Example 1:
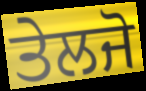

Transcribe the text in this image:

ਤੇਲਜੋ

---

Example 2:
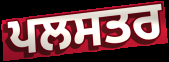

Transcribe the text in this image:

ਪਲਸਤਰ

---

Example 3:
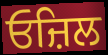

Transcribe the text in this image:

ਓਜ਼ਿਲ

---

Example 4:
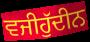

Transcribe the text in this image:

ਵਜੀਹੁੱਦੀਨ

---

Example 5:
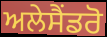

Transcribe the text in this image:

ਅਲੇਸੈਂਡਰੋ